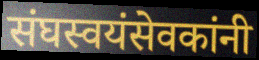
संघस्वयंसेवकांनी